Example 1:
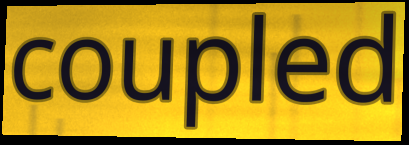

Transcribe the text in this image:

coupled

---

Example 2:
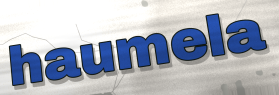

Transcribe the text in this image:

haumela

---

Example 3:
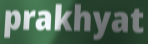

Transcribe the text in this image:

prakhyat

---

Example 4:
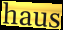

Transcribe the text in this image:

haus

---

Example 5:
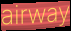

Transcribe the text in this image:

airway